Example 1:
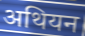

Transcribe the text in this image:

अथियन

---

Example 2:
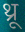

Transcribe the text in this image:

थ्रू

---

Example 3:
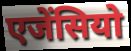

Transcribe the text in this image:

एजेंसियो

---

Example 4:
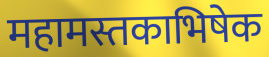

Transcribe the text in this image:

महामस्तकाभिषेक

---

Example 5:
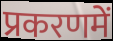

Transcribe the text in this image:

प्रकरणमें